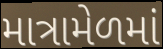
માત્રામેળમાં